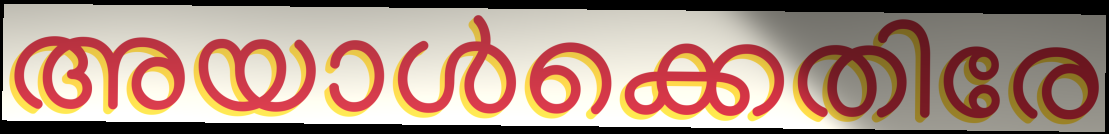
അയാൾക്കെതിരേ